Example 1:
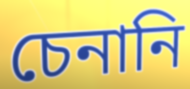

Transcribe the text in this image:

চেনানি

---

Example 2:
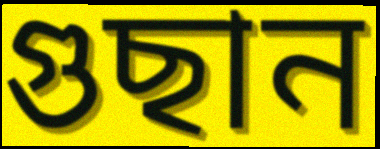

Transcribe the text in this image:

গুছান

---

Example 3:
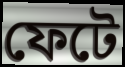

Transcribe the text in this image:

ফেটে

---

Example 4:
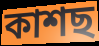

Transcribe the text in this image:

কাশছ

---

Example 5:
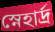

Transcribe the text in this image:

স্নেহার্দ্র